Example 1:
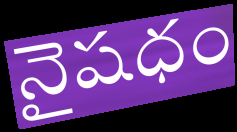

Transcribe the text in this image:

నైషధం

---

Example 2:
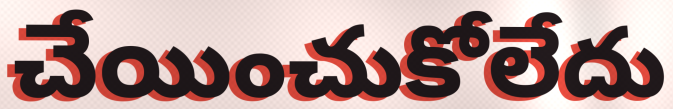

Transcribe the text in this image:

చేయించుకోలేదు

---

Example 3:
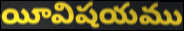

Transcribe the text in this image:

యీవిషయము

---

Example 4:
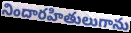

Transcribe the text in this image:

నిందారహితులుగాను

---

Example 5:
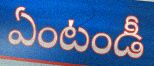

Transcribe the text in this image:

ఏంటండీ